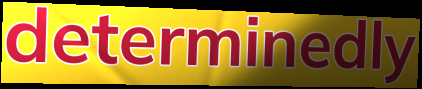
determinedly